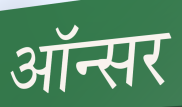
ऑन्सर